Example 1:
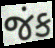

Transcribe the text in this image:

જંક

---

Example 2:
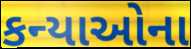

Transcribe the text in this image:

કન્યાઓના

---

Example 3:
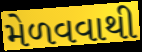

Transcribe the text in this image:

મેળવવાથી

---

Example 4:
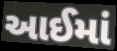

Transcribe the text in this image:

આઈમાં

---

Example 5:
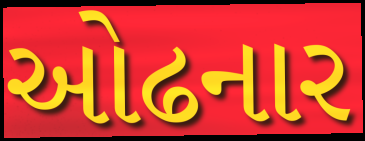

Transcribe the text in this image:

ઓઢનાર